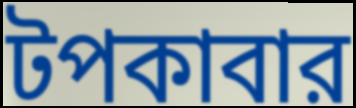
টপকাবার